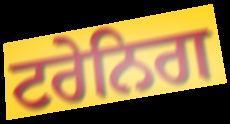
ਟਰੇਨਿਗ